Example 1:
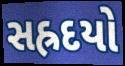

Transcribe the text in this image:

સહ્રદયો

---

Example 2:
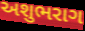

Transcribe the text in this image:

અશુભરાગ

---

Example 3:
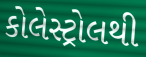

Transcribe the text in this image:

કોલેસ્ટ્રોલથી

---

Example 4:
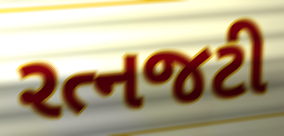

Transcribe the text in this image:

રત્નજટી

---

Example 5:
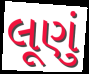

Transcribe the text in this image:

લૂણું